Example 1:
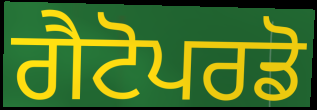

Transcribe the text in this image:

ਗੈਟੋਪਰਡੋ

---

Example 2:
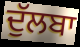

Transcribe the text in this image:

ਦੁੱਲਬਾ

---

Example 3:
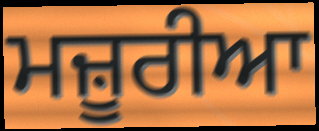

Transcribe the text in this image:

ਮਜ਼ੂਰੀਆ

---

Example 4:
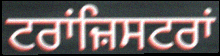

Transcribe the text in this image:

ਟਰਾਂਜ਼ਿਸਟਰਾਂ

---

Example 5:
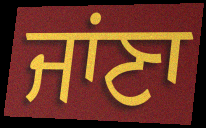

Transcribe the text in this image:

ਜਾਂਣਾ